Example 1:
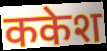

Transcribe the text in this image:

ककेश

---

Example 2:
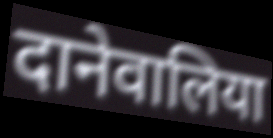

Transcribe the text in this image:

दानेवालिया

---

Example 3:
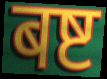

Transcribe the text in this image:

बष्ट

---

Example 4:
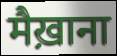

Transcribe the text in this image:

मैख़ाना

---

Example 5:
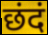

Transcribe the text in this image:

छंदं